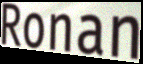
Ronan